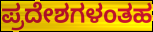
ಪ್ರದೇಶಗಳಂತಹ